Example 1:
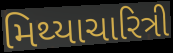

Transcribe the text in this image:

મિથ્યાચારિત્રી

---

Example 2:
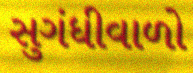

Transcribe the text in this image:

સુગંધીવાળો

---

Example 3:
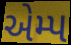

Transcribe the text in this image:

એમ્પ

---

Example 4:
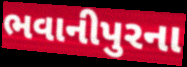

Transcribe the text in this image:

ભવાનીપુરના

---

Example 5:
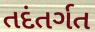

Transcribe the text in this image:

તદંતર્ગત